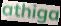
athiga